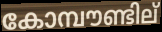
കോമ്പൗണ്ടില്